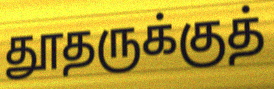
தூதருக்குத்